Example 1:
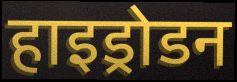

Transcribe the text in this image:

हाइड्रोडन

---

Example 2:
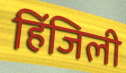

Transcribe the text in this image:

हिंजिली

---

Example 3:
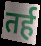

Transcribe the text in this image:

तर्ह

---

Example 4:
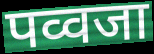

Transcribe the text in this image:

पव्वजा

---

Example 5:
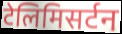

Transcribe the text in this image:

टेलिमिसर्टन